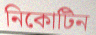
নিকোটিন